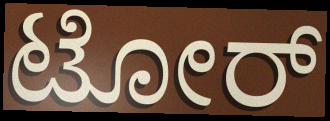
ಟೋರ್